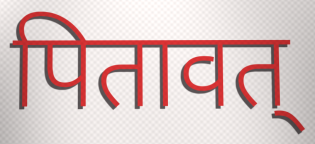
पितावत्